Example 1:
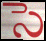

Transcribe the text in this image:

సె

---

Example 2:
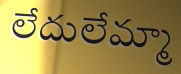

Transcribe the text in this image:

లేదులేమ్మా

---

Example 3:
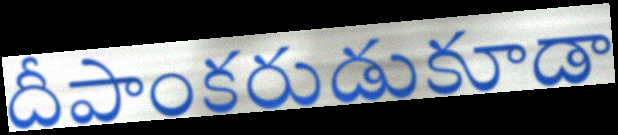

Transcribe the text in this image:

దీపాంకరుడుకూడా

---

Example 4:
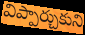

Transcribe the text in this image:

విప్పార్చుకుని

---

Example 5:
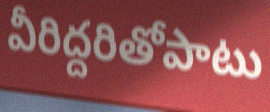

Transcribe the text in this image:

వీరిద్దరితోపాటు